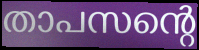
താപസന്റെ